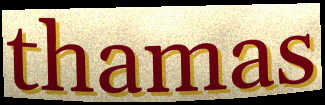
thamas